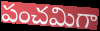
పంచమిగా